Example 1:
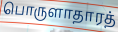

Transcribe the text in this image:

பொருளாதாரத்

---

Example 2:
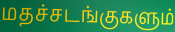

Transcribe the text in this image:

மதச்சடங்குகளும்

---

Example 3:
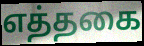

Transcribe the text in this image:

எத்தகை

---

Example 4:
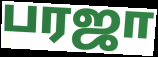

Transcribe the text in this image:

பரஜா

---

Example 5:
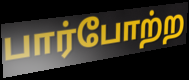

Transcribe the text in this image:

பார்போற்ற